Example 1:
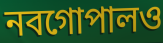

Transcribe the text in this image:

নবগোপালও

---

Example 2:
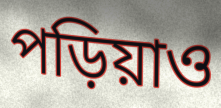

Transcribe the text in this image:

পড়িয়াও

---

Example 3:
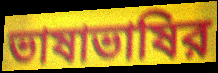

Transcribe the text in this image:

ভাষাভাষির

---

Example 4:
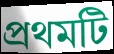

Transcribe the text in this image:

প্রথমটি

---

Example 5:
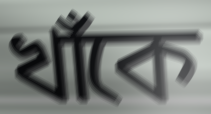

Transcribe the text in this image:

খাঁকে